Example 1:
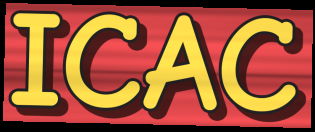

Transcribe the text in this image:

ICAC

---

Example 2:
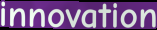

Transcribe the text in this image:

innovation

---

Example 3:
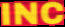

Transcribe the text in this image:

INC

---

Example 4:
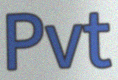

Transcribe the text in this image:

Pvt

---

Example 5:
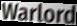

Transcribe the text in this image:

Warlord